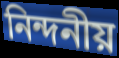
নিন্দনীয়